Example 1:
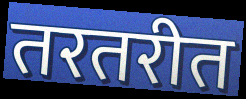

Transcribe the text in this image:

तरतरीत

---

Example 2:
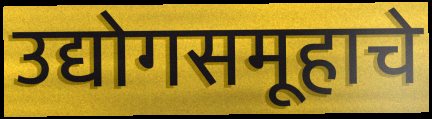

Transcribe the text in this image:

उद्योगसमूहाचे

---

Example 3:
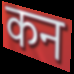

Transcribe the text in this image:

कन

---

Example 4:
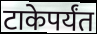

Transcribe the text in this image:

टाकेपर्यंत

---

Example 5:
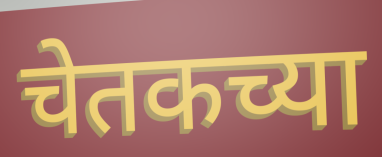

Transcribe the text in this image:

चेतकच्या